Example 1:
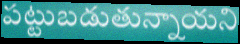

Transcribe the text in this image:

పట్టుబడుతున్నాయని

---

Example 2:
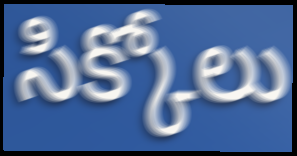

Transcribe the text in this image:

సిక్కోలు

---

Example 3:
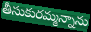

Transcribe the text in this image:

తీసుకురమ్మన్నాను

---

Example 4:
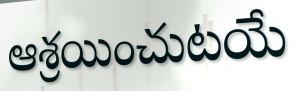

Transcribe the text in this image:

ఆశ్రయించుటయే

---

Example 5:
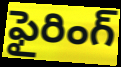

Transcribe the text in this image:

ఫైరింగ్